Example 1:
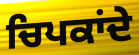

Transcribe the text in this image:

ਚਿਪਕਾਂਦੇ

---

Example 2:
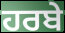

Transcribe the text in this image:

ਹਰਬੇ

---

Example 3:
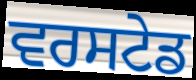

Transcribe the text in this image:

ਵਰਸਟੇਡ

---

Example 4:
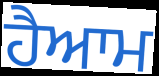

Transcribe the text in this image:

ਹੈਆਮ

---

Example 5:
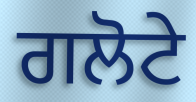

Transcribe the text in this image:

ਗਲੋਟੇ